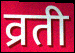
व्रती